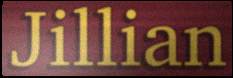
Jillian